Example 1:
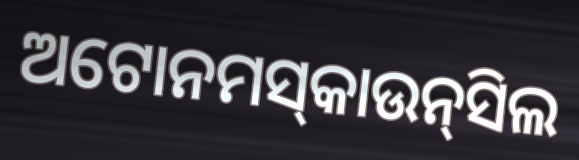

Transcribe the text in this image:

ଅଟୋନମସ୍‌କାଉନ୍‌ସିଲ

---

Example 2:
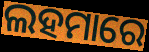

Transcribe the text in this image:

ଲହମାରେ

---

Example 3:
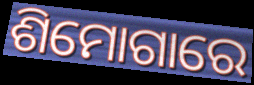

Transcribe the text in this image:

ଶିମୋଗାରେ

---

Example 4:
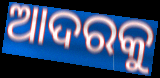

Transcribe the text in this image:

ଆଦରକୁ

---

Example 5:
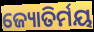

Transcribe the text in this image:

ଜ୍ୟୋତିର୍ମୟ